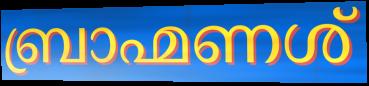
ബ്രാഹ്മണശ്